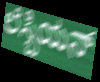
ಲೆಸ್ಬಿಯನ್